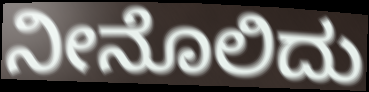
ನೀನೊಲಿದು